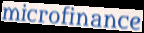
microfinance